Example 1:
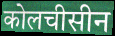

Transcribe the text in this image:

कोलचीसीन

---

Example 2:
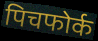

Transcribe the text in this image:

पिचफोर्क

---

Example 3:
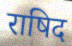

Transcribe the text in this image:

राषिद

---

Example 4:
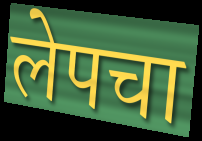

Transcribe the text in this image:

लेपचा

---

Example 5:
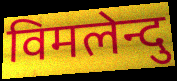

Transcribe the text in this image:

विमलेन्दु